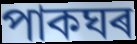
পাকঘৰ